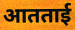
आतताई